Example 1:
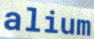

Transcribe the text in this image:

alium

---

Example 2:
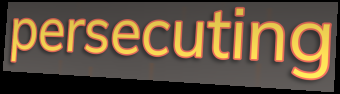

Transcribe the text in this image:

persecuting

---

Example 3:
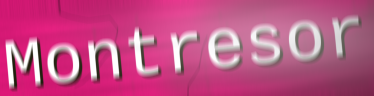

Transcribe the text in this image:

Montresor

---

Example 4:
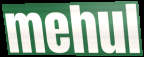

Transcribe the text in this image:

mehul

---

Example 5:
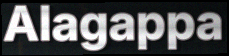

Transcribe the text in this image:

Alagappa